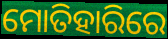
ମୋତିହାରିରେ